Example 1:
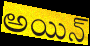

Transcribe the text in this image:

అయిన్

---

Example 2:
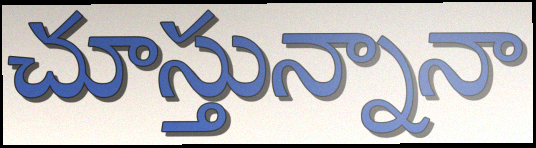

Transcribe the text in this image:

చూస్తున్నానా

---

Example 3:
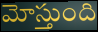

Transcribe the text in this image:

మోస్తుంది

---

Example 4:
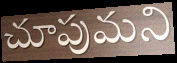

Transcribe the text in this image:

చూపుమని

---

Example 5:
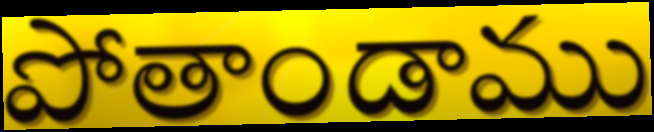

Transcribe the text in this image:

పోతాండాము